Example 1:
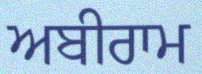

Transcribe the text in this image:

ਅਬੀਰਾਮ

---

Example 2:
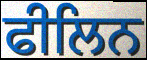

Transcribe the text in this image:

ਫੀਲਿਨ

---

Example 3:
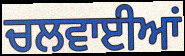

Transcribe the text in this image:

ਚਲਵਾਈਆਂ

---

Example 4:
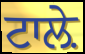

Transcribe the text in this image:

ਟਾਲ਼ੇ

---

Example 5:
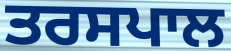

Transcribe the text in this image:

ਤਰਸਪਾਲ